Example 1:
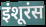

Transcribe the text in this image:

इंशूरंस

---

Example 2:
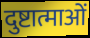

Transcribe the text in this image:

दुष्टात्माओं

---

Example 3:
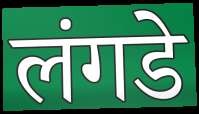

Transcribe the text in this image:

लंगडे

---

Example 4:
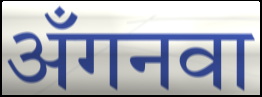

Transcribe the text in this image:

अँगनवा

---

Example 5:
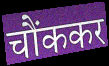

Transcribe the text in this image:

चौंककर